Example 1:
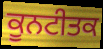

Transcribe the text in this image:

ਕੂਨਟੀਤਕ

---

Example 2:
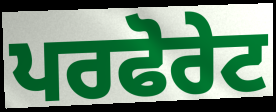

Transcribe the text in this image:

ਪਰਫੋਰੇਟ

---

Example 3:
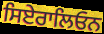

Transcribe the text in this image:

ਸਿਏਰਾਲਿਓਨ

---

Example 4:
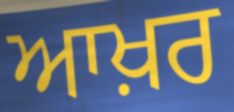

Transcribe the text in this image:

ਆਖ਼ਰ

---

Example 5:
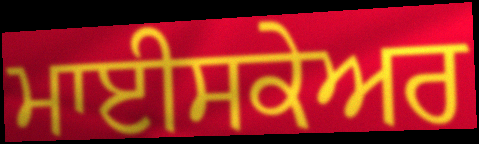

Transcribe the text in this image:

ਮਾਈਸਕੇਅਰ